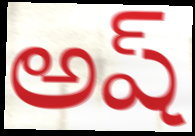
అష్